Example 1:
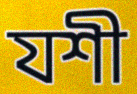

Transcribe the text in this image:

যশী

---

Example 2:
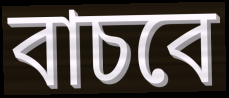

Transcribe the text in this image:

বাচবে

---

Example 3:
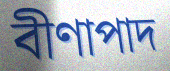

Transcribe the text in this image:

বীণাপাদ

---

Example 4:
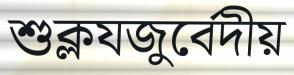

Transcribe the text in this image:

শুক্লযজুর্বেদীয়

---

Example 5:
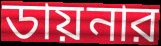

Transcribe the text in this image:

ডায়নার